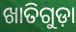
ଖାତିଗୁଡ଼ା